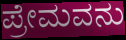
ಪ್ರೇಮವನು